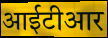
आईटीआर